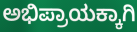
ಅಭಿಪ್ರಾಯಕ್ಕಾಗಿ